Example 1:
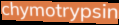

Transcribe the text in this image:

chymotrypsin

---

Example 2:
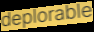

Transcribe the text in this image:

deplorable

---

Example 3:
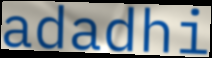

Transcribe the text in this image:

adadhi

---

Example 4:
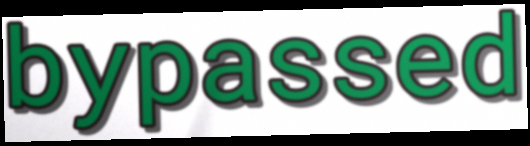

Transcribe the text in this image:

bypassed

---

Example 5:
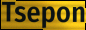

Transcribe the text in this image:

Tsepon